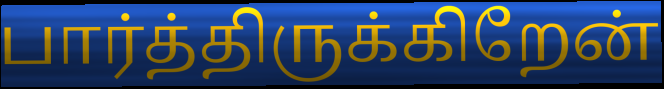
பார்த்திருக்கிறேன்